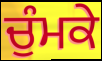
ਚੁੰਮਕੇ